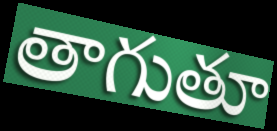
తాగుతూ